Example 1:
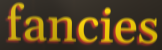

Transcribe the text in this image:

fancies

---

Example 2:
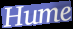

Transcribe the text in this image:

Hume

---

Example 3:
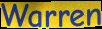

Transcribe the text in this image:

Warren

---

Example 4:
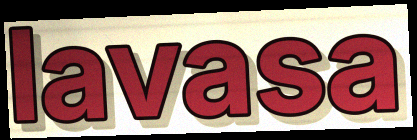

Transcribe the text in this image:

lavasa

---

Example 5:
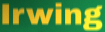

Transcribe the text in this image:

Irwing